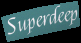
Superdeep